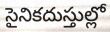
సైనికదుస్తుల్లో